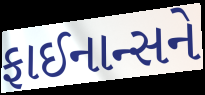
ફાઈનાન્સને